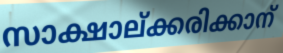
സാക്ഷാല്ക്കരിക്കാന്